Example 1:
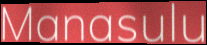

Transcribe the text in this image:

Manasulu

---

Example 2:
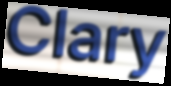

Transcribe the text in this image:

Clary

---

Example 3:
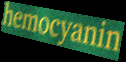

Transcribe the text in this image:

hemocyanin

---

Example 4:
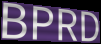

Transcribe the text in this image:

BPRD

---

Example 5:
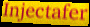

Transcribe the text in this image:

Injectafer